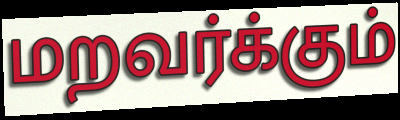
மறவர்க்கும்